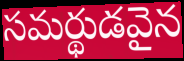
సమర్థుడవైన